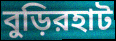
বুড়িরহাট